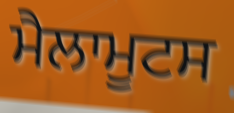
ਮੈਲਾਮੂਟਸ